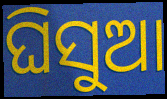
ଘିସୁଆ